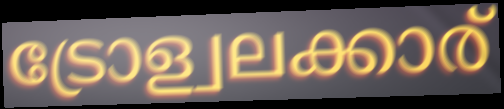
ട്രോള്വലക്കാര്